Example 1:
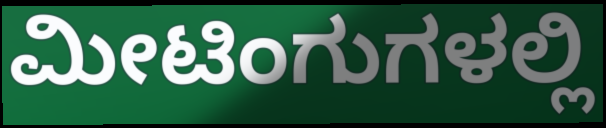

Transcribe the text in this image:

ಮೀಟಿಂಗುಗಳಲ್ಲಿ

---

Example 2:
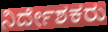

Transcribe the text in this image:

ನಿರ್ದೇಶಕರು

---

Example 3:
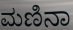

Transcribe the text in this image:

ಮಣಿನಾ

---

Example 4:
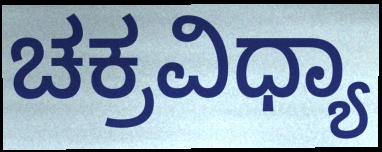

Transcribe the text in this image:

ಚಕ್ರವಿಧ್ಯಾ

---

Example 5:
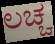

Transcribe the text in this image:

ಲಚ್ಚ